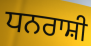
ਧਨਰਾਸ਼ੀ